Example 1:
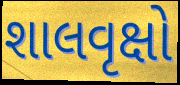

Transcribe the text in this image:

શાલવૃક્ષો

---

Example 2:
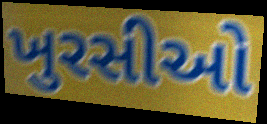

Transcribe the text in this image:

ખુરસીઓ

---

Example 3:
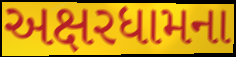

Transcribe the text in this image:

અક્ષરધામના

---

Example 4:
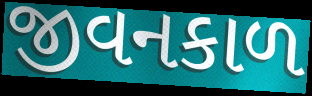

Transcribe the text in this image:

જીવનકાળ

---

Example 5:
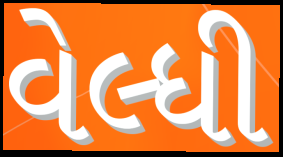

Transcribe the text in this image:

વેલ્ધી